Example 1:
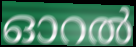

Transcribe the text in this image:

ഓറൽ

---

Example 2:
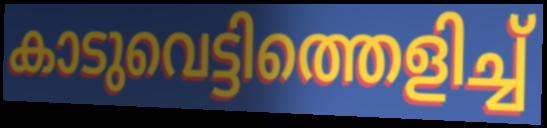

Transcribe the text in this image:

കാടുവെട്ടിത്തെളിച്ച്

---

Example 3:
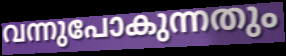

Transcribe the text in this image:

വന്നുപോകുന്നതും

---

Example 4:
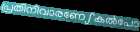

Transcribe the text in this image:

പ്രതിനിവാരണേഽകൽപോ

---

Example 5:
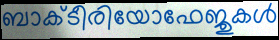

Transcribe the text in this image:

ബാക്ടീരിയോഫേജുകൾ